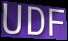
UDF